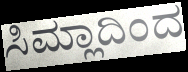
ಸಿಮ್ಲಾದಿಂದ